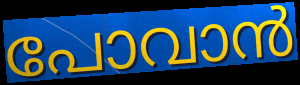
പോവാൻ